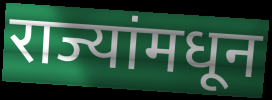
राज्यांमधून